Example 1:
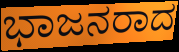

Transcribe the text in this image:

ಭಾಜನರಾದ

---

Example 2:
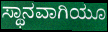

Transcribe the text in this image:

ಸ್ಥಾನವಾಗಿಯೂ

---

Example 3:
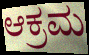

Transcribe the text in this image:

ಆಕ್ರಮ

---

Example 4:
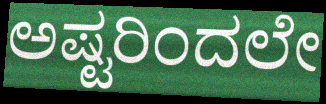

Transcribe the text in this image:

ಅಷ್ಟರಿಂದಲೇ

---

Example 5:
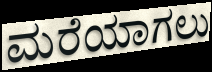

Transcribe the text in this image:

ಮರೆಯಾಗಲು